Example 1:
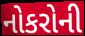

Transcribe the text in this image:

નોકરોની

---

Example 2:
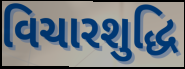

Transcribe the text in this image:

વિચારશુદ્ધિ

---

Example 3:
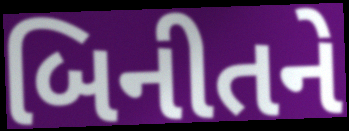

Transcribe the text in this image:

બિનીતને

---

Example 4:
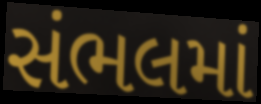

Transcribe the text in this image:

સંભલમાં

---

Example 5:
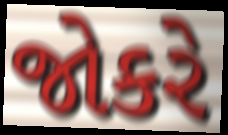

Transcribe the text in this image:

જોકરે